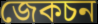
জেকচন